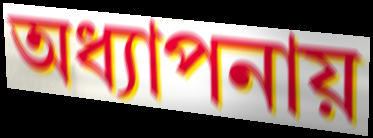
অধ্যাপনায়